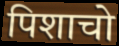
पिशाचो